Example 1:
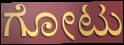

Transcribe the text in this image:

ಗೋಟು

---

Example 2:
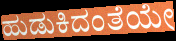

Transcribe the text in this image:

ಹುಡುಕಿದಂತೆಯೇ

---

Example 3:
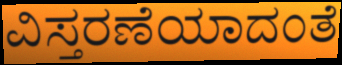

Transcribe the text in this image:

ವಿಸ್ತರಣೆಯಾದಂತೆ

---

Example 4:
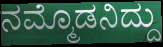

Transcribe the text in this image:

ನಮ್ಮೊಡನಿದ್ದು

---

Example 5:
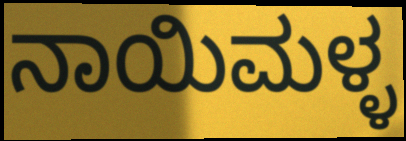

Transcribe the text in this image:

ನಾಯಿಮಳ್ಳ